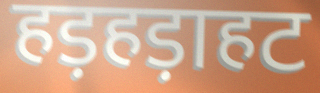
हड़हड़ाहट